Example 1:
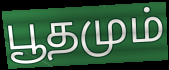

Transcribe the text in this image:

பூதமும்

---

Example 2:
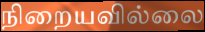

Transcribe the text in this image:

நிறையவில்லை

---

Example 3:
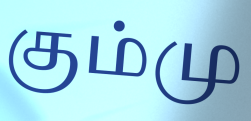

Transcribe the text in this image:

கும்மு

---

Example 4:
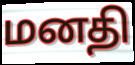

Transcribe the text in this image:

மனதி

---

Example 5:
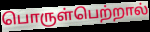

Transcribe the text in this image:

பொருள்பெற்றால்